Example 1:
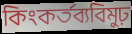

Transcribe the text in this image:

কিংকর্তব্যবিমুঢ়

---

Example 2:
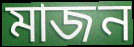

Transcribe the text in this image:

মাজন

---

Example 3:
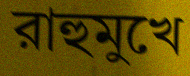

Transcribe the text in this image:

রাহুমুখে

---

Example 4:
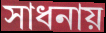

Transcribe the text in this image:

সাধনায়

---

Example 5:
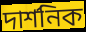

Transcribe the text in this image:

দার্শনিক